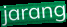
jarang